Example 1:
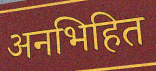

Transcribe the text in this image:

अनभिहित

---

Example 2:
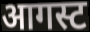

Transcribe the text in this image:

आगस्ट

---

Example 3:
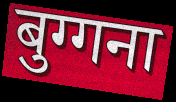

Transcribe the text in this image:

बुग्गना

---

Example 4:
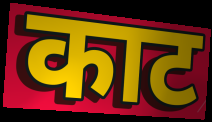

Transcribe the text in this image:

काट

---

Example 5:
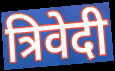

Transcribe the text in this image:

त्रिवेदी